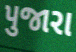
પુજારા